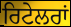
ਰਿਟੇਲਰਾਂ